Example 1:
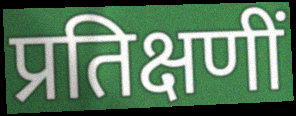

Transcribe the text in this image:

प्रतिक्षणीं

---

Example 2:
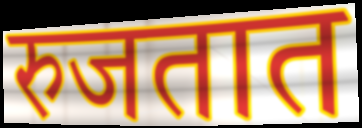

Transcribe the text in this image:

रुजतात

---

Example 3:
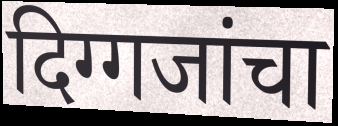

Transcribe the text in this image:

दिग्गजांचा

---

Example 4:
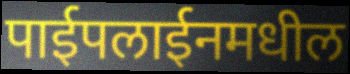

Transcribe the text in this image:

पाईपलाईनमधील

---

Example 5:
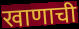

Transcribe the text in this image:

खाणाची